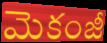
మెకంజీ